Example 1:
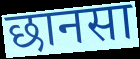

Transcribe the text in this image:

छानसा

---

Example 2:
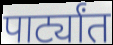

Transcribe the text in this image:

पार्ट्यांत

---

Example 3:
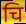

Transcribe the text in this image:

चि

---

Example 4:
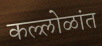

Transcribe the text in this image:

कल्लोळांत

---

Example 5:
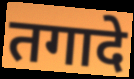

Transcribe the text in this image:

तगादे